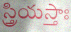
స్త్రియస్తాః